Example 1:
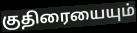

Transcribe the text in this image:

குதிரையையும்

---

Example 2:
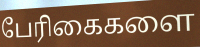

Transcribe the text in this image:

பேரிகைகளை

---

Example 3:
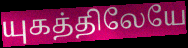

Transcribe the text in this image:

யுகத்திலேயே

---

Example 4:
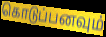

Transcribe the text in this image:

கொடுப்பனவும்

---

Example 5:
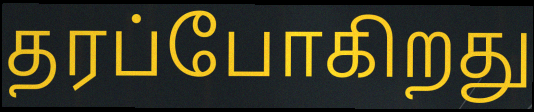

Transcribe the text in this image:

தரப்போகிறது